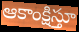
ఆకాంక్షిస్తూ